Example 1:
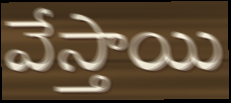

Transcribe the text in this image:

వేస్తాయి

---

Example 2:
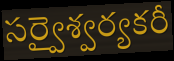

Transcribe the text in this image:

సర్వైశ్వర్యకరీ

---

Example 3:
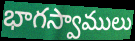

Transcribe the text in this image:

భాగస్వాములు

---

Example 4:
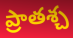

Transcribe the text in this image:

ప్రాతశ్చ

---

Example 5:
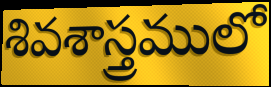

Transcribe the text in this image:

శివశాస్త్రములో